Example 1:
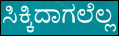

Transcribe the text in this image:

ಸಿಕ್ಕಿದಾಗಲೆಲ್ಲ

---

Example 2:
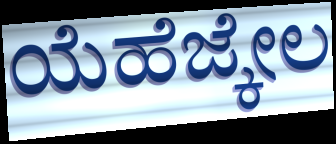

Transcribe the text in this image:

ಯೆಹೆಜ್ಕೇಲ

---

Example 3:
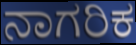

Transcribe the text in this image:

ನಾಗರಿಕ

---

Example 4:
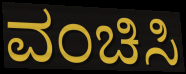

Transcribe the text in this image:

ವಂಚಿಸಿ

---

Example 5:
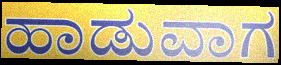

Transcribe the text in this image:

ಹಾಡುವಾಗ